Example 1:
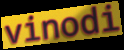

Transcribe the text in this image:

vinodi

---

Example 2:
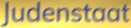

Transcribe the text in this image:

Judenstaat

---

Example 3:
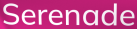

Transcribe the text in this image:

Serenade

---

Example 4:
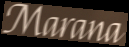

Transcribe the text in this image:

Marana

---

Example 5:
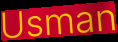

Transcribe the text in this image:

Usman